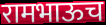
रामभाऊच